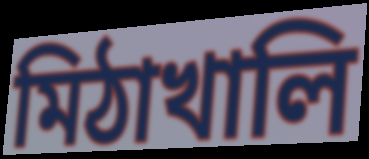
মিঠাখালি